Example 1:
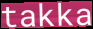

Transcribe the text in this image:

takka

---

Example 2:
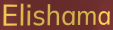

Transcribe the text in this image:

Elishama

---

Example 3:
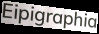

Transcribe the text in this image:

Eipigraphia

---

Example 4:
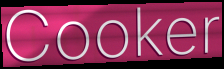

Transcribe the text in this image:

Cooker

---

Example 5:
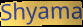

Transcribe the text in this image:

Shyama